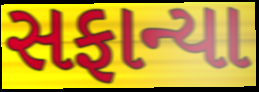
સફાન્યા